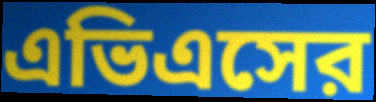
এভিএসের